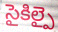
సైకిల్పై